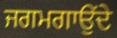
ਜਗਮਗਾਉਂਦੇ